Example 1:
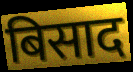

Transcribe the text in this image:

बिसाद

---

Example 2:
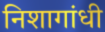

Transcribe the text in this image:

निशागांधी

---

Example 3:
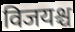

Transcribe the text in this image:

विजयश्च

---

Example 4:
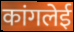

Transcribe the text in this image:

कांगलेई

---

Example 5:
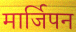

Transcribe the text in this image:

मार्जिपन